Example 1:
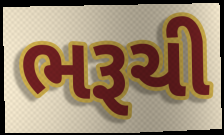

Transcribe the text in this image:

ભરૂચી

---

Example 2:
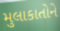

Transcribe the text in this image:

મુલાકાતોને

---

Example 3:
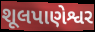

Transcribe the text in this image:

શૂલપાણેશ્વર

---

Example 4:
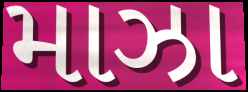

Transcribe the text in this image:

માઝા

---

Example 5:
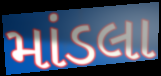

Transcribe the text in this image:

માંડલા